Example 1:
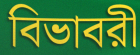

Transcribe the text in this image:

বিভাবরী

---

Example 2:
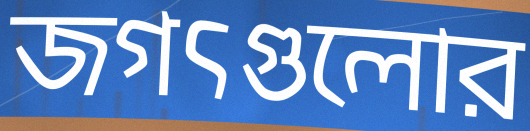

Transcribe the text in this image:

জগৎগুলোর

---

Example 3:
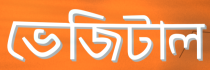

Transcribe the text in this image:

ভেজিটাল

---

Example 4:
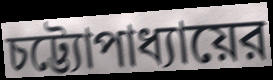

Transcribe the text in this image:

চট্ট্যোপাধ্যায়ের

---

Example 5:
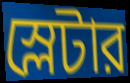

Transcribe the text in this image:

স্লেটার